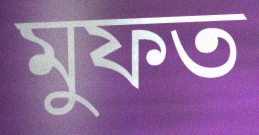
মুফত